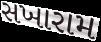
સખારામ